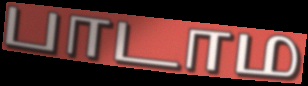
பாடாம